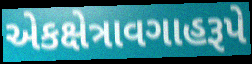
એકક્ષેત્રાવગાહરૂપે